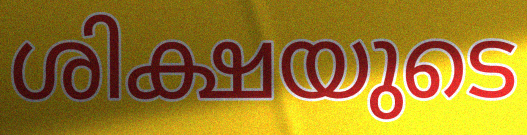
ശിക്ഷയുടെ